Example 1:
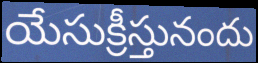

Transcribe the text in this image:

యేసుక్రీస్తునందు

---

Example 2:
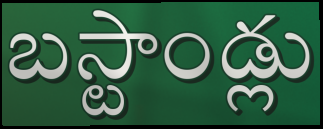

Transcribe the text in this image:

బస్టాండ్లు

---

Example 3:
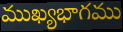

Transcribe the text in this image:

ముఖ్యభాగము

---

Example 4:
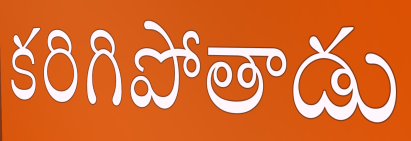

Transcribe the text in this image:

కరిగిపోతాడు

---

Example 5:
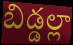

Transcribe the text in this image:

బిడ్డల్లా